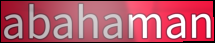
abahaman